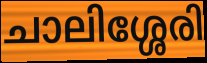
ചാലിശ്ശേരി